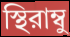
স্থিরাম্বু